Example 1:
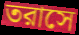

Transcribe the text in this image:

তরাসে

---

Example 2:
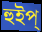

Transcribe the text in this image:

হুইপ্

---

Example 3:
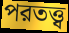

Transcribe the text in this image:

পরতত্ত্ব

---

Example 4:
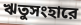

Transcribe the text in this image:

ঋতুসংহারে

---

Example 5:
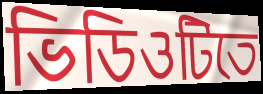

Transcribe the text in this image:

ভিডিওটিতে